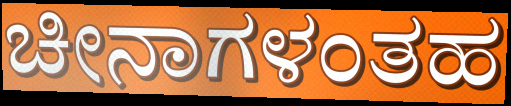
ಚೀನಾಗಳಂತಹ